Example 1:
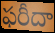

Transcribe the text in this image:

ఫరీదా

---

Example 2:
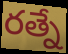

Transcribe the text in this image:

రత్నే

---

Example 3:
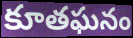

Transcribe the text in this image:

కూతఘనం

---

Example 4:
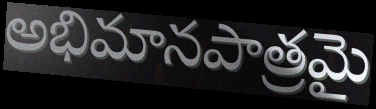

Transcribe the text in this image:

అభిమానపాత్రమై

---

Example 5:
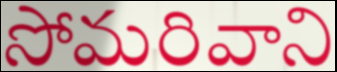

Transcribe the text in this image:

సోమరివాని